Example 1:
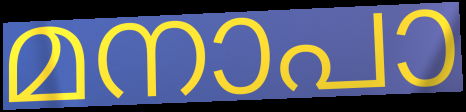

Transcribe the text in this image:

മനാപാ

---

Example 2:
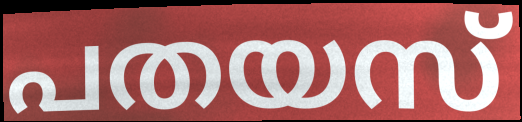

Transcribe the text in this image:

പതയസ്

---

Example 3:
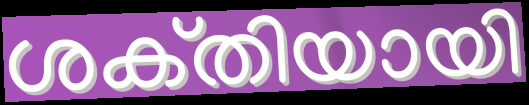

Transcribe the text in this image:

ശക്‌തിയായി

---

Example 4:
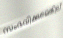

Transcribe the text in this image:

സംഭവിക്കുമെങ്കില്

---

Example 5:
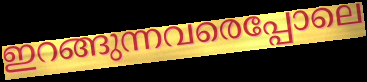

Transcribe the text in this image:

ഇറങ്ങുന്നവരെപ്പോലെ